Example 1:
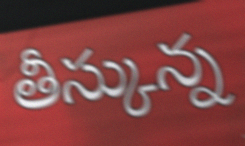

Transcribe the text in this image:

తీస్కున్న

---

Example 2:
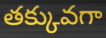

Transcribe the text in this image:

తక్కువగా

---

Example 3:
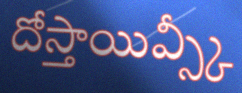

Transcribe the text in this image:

దోస్తాయివ్స్కీ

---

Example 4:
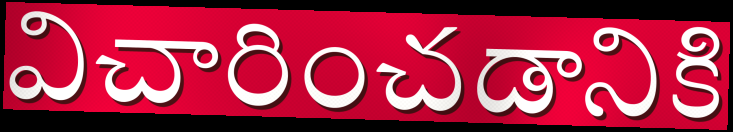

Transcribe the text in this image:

విచారించడానికి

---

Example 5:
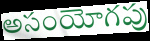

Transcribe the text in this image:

అసంయోగపు